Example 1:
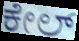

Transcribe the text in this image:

ಕೇಲ್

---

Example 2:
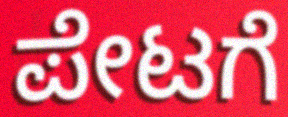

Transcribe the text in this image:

ಪೇಟಗೆ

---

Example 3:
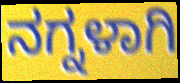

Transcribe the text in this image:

ನಗ್ನಳಾಗಿ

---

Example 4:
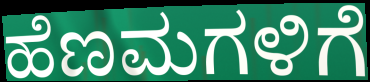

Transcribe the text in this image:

ಹೆಣಮಗಳಿಗೆ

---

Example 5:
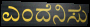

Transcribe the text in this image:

ಎಂದೆನಿಸು